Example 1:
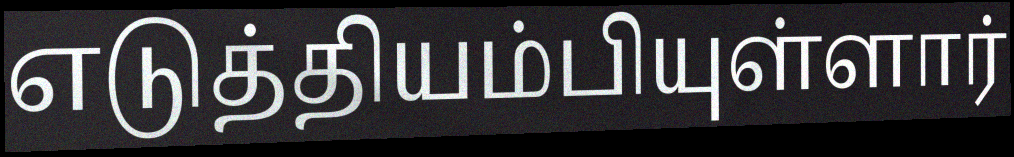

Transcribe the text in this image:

எடுத்தியம்பியுள்ளார்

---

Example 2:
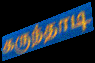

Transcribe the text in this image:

கருந்தாடி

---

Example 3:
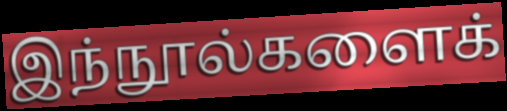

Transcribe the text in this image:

இந்நூல்களைக்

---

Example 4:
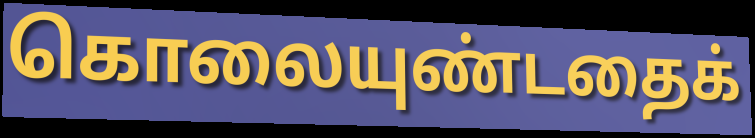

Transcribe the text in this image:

கொலையுண்டதைக்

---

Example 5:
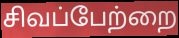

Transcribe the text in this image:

சிவப்பேற்றை